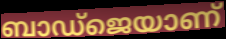
ബാഡ്ജെയാണ്